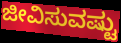
ಜೀವಿಸುವಷ್ಟು